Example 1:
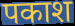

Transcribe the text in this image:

पकाश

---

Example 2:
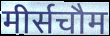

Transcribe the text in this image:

मीर्सचौम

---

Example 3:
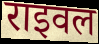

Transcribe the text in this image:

राइवल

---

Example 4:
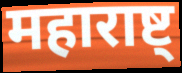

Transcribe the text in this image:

महाराष्ट्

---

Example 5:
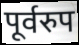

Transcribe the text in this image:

पूर्वरुप